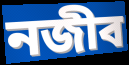
নজীব